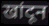
खांदून